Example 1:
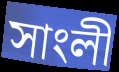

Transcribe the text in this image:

সাংলী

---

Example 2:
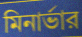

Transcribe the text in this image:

মিনার্ভার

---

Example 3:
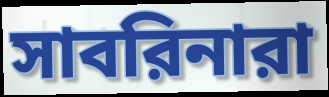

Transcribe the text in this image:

সাবরিনারা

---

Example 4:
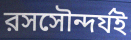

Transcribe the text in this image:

রসসৌন্দর্যই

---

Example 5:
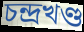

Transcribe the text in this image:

চন্দ্রখণ্ড